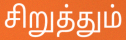
சிறுத்தும்